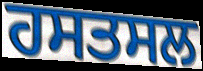
ਹਸਤਸਲ